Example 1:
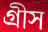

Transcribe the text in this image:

গ্রীস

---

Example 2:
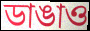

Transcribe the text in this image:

ডাঙাও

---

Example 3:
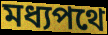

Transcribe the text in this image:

মধ্যপথে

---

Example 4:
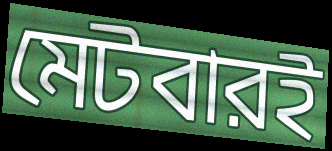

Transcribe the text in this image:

মেটবারই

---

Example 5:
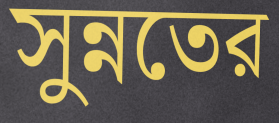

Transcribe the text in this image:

সুন্নতের